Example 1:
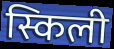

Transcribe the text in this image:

स्किली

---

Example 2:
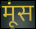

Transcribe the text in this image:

मूंस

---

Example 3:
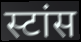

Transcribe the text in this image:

स्टांस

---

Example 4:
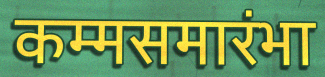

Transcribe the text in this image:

कम्मसमारंभा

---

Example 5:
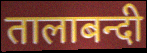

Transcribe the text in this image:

तालाबन्दी